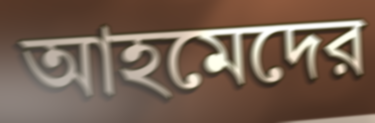
আহমেদের